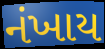
નંખાય